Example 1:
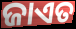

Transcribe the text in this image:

ଜାଏତ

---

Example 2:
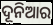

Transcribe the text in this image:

ଦୂନିଆର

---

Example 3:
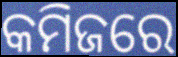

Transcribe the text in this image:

କମିଜରେ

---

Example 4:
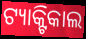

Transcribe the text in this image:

ଟ୍ୟାକ୍ଟିକାଲ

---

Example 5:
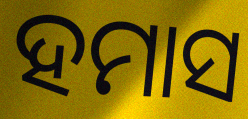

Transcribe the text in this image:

ହମାସ